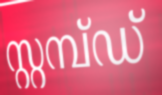
സ്റ്റമ്പ്ഡ്